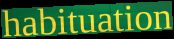
habituation